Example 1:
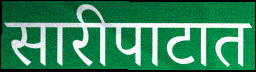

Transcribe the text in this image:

सारीपाटात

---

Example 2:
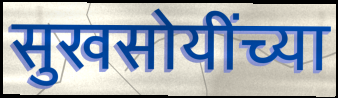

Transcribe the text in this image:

सुखसोयींच्या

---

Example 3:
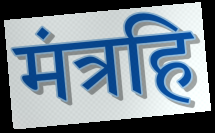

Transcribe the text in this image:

मंत्रहि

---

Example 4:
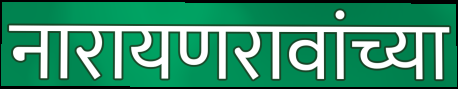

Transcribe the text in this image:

नारायणरावांच्या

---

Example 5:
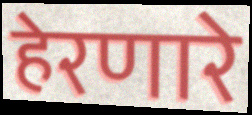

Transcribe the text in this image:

हेरणारे